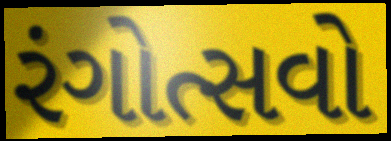
રંગોત્સવો